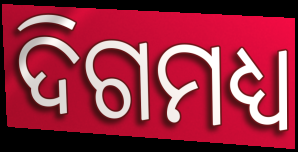
ଦିଗମଧ୍ୟ